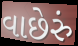
વાછેરું